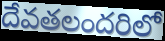
దేవతలందరిలో